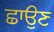
ਛਾਉਣ